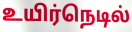
உயிர்நெடில்